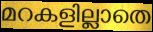
മറകളില്ലാതെ